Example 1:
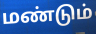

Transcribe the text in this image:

மண்டும்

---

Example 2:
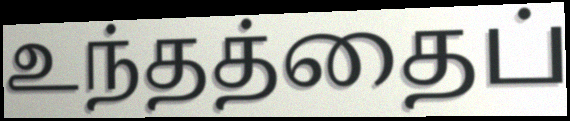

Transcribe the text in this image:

உந்தத்தைப்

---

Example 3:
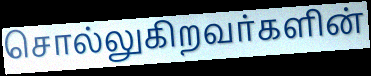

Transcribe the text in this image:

சொல்லுகிறவர்களின்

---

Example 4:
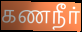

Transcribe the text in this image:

கணநீர்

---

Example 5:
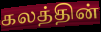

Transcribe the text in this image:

கலத்தின்